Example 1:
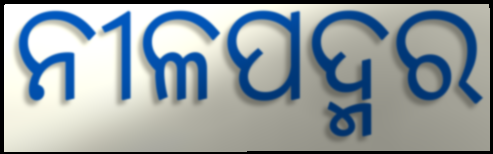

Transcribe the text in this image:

ନୀଳପଦ୍ମର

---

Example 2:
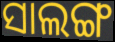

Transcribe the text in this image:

ସାଲଙ୍ଗ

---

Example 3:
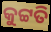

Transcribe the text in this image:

କୁଟ୍ଟତି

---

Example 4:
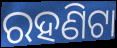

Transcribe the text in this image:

ରହଣିଟା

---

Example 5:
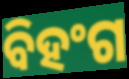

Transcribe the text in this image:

ବିହଂଗ